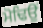
ਮੋਢਿਉਂ